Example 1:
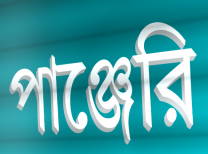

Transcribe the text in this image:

পাঞ্জেরি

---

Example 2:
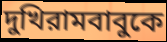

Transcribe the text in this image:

দুখিরামবাবুকে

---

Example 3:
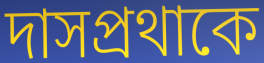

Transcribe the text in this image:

দাসপ্রথাকে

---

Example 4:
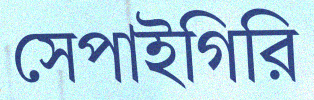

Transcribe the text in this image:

সেপাইগিরি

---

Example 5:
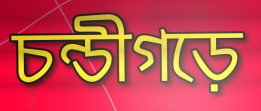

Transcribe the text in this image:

চন্ডীগড়ে